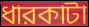
ধারকাটা